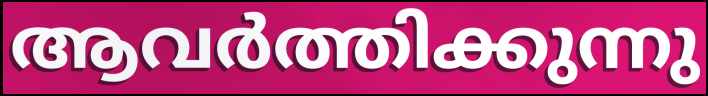
ആവർത്തിക്കുന്നു